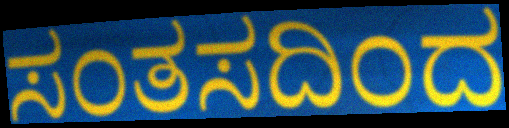
ಸಂತಸದಿಂದ